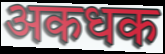
अकधक